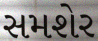
સમશેર